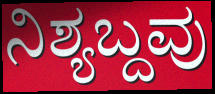
ನಿಶ್ಯಬ್ದವು